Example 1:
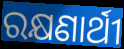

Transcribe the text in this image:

ରକ୍ଷଣାର୍ଥୀ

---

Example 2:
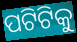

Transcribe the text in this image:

ପଟିଟିକୁ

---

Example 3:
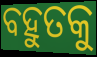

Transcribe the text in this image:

ବହୁତକୁ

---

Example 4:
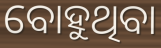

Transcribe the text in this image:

ବୋହୁଥିବା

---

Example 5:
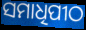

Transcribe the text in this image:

ସମାଧିପୀଠ